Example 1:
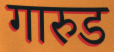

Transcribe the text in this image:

गारुड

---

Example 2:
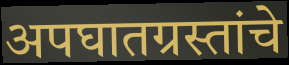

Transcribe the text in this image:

अपघातग्रस्तांचे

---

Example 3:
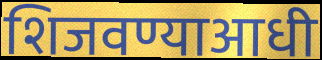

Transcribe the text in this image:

शिजवण्याआधी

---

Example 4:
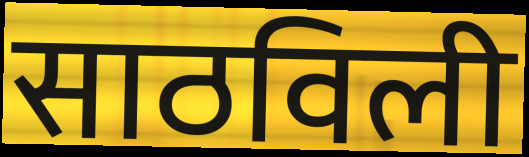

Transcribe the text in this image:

साठविली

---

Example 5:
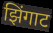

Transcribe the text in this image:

झिंगाट